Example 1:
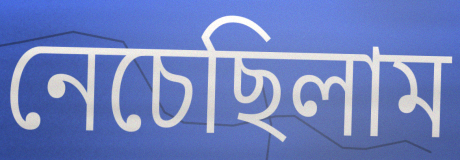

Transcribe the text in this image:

নেচেছিলাম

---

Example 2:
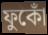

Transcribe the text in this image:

ফুকোঁ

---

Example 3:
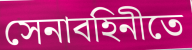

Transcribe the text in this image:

সেনাবহিনীতে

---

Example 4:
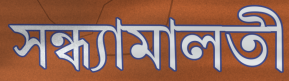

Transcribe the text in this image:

সন্ধ্যামালতী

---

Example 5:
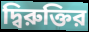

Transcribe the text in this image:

দ্বিরুক্তির